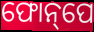
ଫୋନ୍‌ପେ